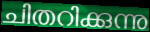
ചിതറിക്കുന്നു